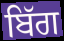
ਬਿੱਗ